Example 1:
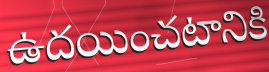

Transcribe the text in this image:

ఉదయించటానికి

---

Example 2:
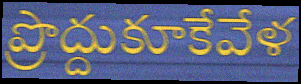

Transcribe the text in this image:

ప్రొద్దుకూకేవేళ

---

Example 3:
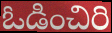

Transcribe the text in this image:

ఓడించిరి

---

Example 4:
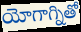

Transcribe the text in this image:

యోగాగ్నితో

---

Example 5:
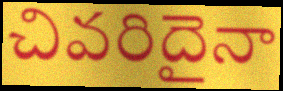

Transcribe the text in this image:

చివరిదైనా